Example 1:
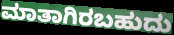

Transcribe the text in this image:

ಮಾತಾಗಿರಬಹುದು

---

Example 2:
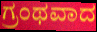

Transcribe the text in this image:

ಗ್ರಂಥವಾದ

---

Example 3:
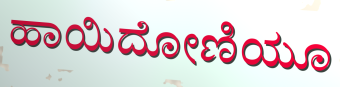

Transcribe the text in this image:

ಹಾಯಿದೋಣಿಯೂ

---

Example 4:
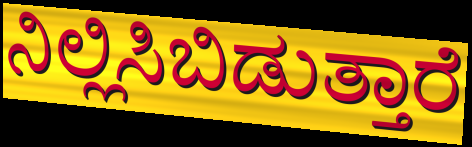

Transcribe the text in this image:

ನಿಲ್ಲಿಸಿಬಿಡುತ್ತಾರೆ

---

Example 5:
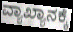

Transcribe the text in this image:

ವ್ಯಾಖ್ಯಾನಕ್ಕೆ